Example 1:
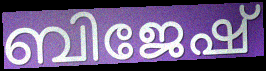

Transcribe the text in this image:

ബിജേഷ്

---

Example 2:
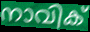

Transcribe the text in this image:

നാവിക്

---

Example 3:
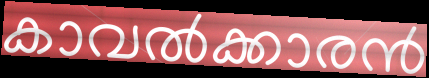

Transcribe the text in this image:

കാവൽക്കാരൻ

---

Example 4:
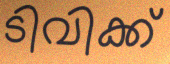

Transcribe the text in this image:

ടിവിക്ക്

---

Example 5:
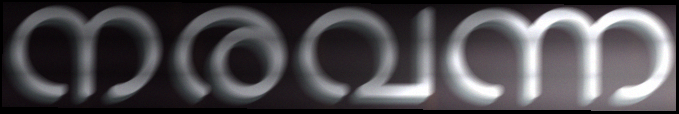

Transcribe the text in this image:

നരവന്ന